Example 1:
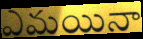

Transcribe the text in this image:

ఎమయినా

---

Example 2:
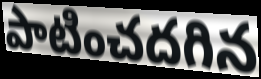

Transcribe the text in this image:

పాటించదగిన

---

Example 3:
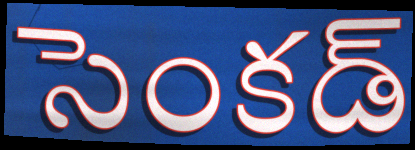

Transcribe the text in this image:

సెంకడ్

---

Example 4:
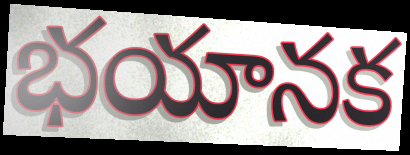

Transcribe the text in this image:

భయానక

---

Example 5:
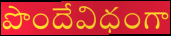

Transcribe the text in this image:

పొందేవిధంగా